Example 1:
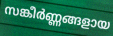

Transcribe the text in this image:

സങ്കീർണ്ണങ്ങളായ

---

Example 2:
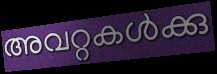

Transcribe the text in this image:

അവറ്റകൾക്കു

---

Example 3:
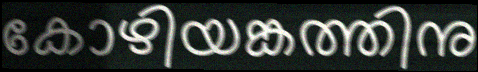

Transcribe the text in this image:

കോഴിയങ്കത്തിനു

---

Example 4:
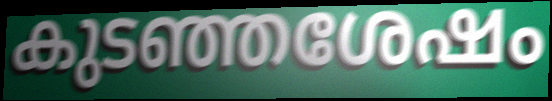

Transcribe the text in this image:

കുടഞ്ഞശേഷം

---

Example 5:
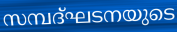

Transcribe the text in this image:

സമ്പദ്ഘടനയുടെ